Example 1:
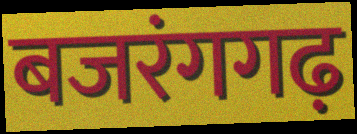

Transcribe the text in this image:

बजरंगगढ़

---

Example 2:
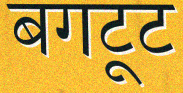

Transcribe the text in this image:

बगटूट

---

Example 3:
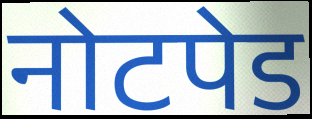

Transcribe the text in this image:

नोटपेड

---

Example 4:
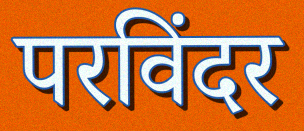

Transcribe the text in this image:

परविंदर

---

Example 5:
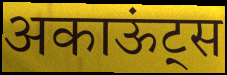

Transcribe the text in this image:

अकाऊंट्स